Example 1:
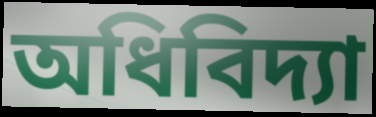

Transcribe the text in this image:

অধিবিদ্যা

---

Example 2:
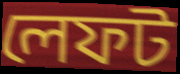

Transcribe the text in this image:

লেফট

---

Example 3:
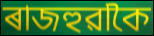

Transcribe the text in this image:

ৰাজহুৱাকৈ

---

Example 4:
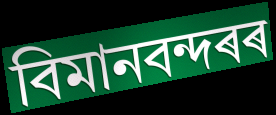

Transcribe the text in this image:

বিমানবন্দৰৰ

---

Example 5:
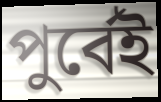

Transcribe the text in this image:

পুৰ্বেই